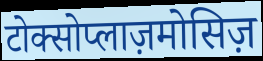
टोक्सोप्लाज़मोसिज़